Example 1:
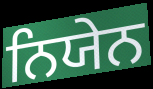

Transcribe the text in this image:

ਨਿਯੇਨ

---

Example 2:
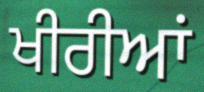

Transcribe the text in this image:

ਖੀਰੀਆਂ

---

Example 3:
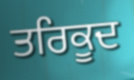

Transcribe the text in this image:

ਤਰਿਕੂਦ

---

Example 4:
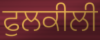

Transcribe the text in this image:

ਫੁਲਕੀਲੀ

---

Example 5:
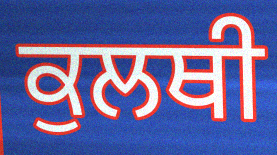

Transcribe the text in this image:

ਕੁਲਥੀ